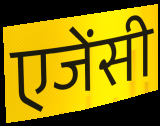
एजेंसी